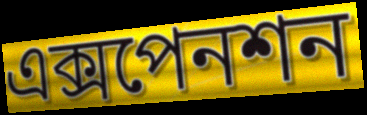
এক্সপেনশন